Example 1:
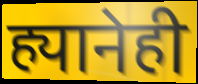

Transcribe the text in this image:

ह्यानेही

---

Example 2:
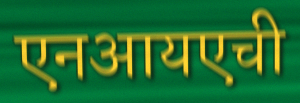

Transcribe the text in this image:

एनआयएची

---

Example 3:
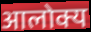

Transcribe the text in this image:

आलोक्य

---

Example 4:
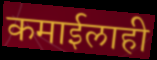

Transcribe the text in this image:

कमाईलाही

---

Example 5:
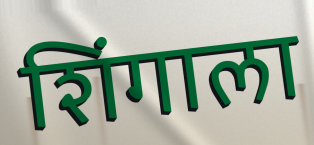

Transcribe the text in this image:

शिंगाला